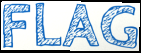
FLAG